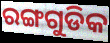
ରଙ୍ଗଗୁଡିକ